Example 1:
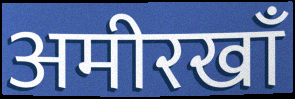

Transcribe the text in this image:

अमीरखाँ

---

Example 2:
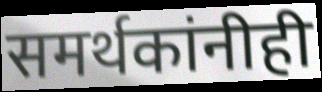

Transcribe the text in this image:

समर्थकांनीही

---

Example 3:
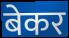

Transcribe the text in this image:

बेकर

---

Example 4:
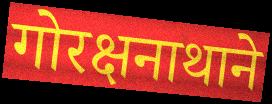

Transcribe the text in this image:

गोरक्षनाथाने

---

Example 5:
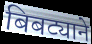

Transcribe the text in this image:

बिबट्याने